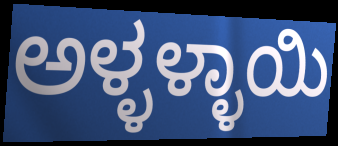
ಅಳ್ಳಳ್ಳಾಯಿ